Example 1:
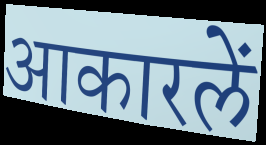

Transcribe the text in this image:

आकारलें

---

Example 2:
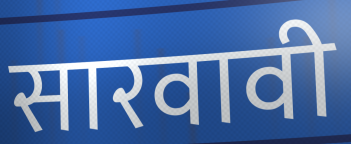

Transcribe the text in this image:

सारवावी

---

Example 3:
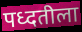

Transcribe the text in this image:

पध्दतीला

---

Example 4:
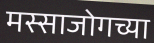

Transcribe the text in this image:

मस्साजोगच्या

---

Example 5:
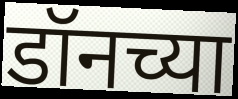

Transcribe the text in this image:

डॉनच्या